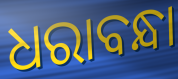
ଧରାବନ୍ଧା